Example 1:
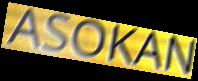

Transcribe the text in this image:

ASOKAN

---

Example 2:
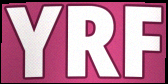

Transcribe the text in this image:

YRF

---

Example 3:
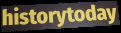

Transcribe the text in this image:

historytoday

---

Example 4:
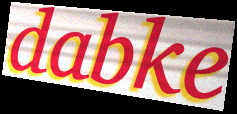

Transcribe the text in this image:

dabke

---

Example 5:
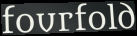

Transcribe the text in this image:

fourfold